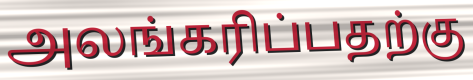
அலங்கரிப்பதற்கு